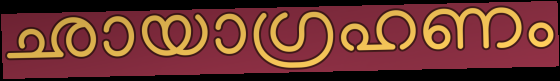
ഛായാഗ്രഹണം